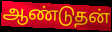
ஆண்டுதன்